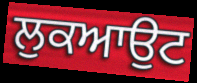
ਲੁਕਆਉਟ